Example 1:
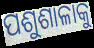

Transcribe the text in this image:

ପଶୁଶାଳାକୁ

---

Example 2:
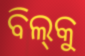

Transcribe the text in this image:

ବିଲ୍‌କୁ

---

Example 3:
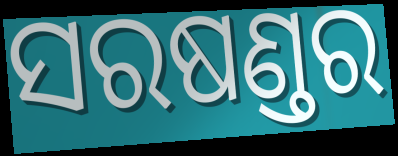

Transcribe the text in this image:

ସରଷଣ୍ଡର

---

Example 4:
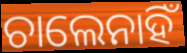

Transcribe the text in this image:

ଚାଲେନାହିଁ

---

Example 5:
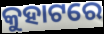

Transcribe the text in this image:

କୁହାଟରେ